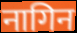
नागिन